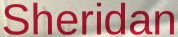
Sheridan